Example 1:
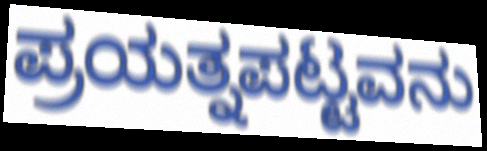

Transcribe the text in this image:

ಪ್ರಯತ್ನಪಟ್ಟವನು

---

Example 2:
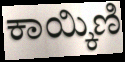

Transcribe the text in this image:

ಕಾಯ್ಕಿಣಿ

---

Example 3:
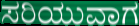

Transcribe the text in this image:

ಸರಿಯುವಾಗ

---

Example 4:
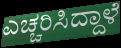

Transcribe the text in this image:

ಎಚ್ಚರಿಸಿದ್ದಾಳೆ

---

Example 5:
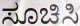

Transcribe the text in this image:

ಸೂಚಿಸಿ